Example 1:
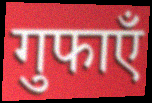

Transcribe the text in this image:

गुफाएँ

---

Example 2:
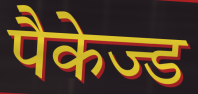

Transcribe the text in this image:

पैकेज्ड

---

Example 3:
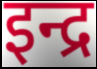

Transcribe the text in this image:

इन्द्र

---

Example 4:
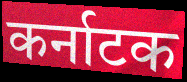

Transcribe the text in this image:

कर्नाटक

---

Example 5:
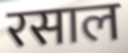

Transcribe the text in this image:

रसाल